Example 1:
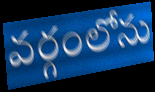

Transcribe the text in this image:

వర్గంలోను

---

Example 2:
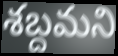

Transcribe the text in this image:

శబ్దమని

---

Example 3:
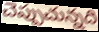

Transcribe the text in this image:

చెప్పుచున్నది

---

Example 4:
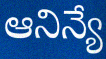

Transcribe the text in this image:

ఆనిన్యే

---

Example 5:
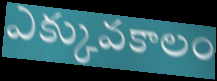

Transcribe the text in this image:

ఎక్కువకాలం